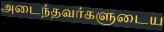
அடைந்தவர்களுடைய